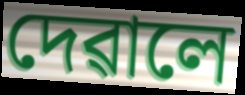
দেৱালে